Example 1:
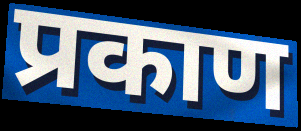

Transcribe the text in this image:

प्रकाण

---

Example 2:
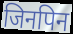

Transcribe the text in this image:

जिनपिन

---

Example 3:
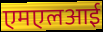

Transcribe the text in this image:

एमएलआई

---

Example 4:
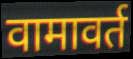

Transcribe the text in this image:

वामावर्त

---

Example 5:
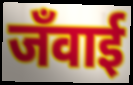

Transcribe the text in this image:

जँवाई